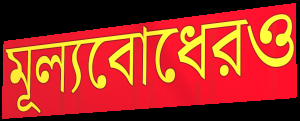
মূল্যবোধেরও